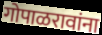
गोपाळरावांना